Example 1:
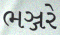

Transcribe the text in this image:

ભઞ્જરે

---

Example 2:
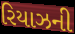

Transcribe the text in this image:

રિયાઝની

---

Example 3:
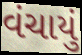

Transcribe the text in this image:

વંચાયું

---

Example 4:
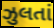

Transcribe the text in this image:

ઝુલતાં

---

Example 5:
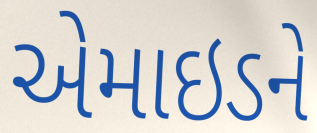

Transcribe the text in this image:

એમાઇડને